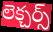
లెక్చర్స్